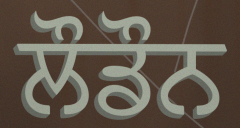
ਲੌਡੌਨ